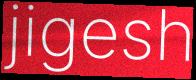
jigesh